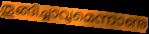
തൂങ്ങിച്ചാവുമെന്നാണു